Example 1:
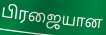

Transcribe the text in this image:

பிரஜையான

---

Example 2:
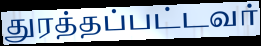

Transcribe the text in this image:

துரத்தப்பட்டவர்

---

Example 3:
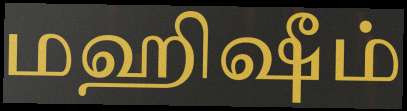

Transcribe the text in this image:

மஹிஷீம்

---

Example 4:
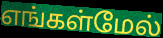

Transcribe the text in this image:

எங்கள்மேல்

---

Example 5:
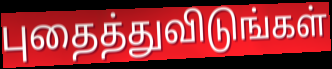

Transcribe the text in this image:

புதைத்துவிடுங்கள்